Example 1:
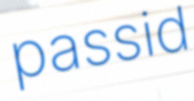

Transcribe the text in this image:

passid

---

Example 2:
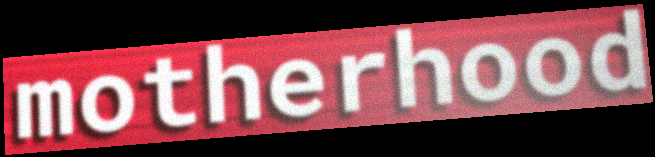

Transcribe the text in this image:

motherhood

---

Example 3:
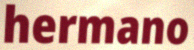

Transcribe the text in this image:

hermano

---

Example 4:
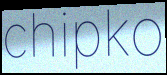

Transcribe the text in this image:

chipko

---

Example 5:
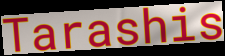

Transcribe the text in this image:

Tarashis